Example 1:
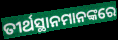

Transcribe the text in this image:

ତୀର୍ଥସ୍ଥାନମାନଙ୍କରେ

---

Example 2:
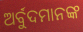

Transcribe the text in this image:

ଅର୍ବୁଦମାନଙ୍କ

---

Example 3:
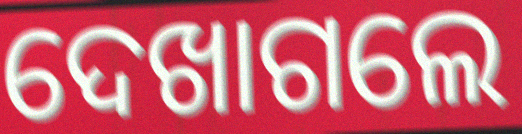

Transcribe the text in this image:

ଦେଖାଗଲେ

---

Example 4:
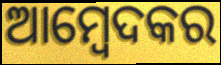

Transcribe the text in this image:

ଆମ୍ବେଦକର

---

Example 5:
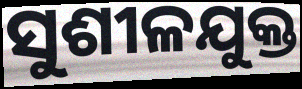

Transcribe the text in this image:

ସୁଶୀଳଯୁକ୍ତ